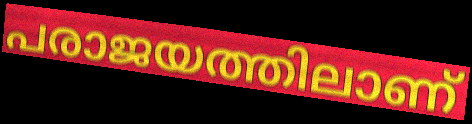
പരാജയത്തിലാണ്